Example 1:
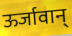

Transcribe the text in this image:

ऊर्जावान्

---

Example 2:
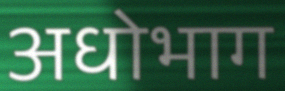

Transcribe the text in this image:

अधोभाग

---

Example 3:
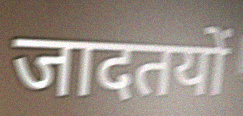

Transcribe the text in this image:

जादतयों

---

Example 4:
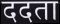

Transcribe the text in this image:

ददता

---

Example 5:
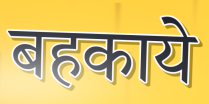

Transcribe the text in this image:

बहकाये